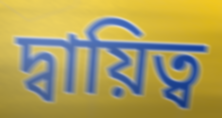
দ্বায়িত্ব